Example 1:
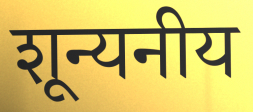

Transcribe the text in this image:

शून्यनीय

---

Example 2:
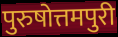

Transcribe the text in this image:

पुरुषोत्तमपुरी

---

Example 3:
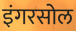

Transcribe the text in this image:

इंगरसोल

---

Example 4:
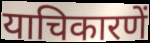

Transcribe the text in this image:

याचिकारणें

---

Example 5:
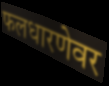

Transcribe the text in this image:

फलधारणेवर